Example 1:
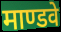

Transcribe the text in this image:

माण्डवे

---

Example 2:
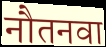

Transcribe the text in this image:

नौतनवा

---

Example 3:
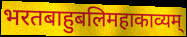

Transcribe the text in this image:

भरतबाहुबलिमहाकाव्यम्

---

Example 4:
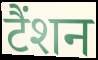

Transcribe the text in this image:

टैंशन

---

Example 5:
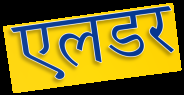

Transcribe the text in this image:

एलडर